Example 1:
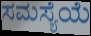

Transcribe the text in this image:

ಸಮಸ್ಯೆಯೆ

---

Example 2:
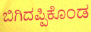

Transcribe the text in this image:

ಬಿಗಿದಪ್ಪಿಕೊಂಡ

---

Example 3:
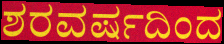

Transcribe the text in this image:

ಶರವರ್ಷದಿಂದ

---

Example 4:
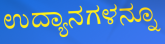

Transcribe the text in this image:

ಉದ್ಯಾನಗಳನ್ನೂ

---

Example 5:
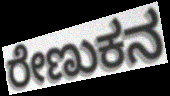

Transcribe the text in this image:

ರೇಣುಕನ